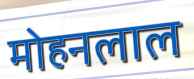
मोहनलाल